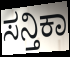
ಸನ್ತಿಕಾ